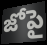
జోపై